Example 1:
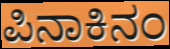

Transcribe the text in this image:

ಪಿನಾಕಿನಂ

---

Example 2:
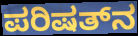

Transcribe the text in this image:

ಪರಿಷತ್‌ನ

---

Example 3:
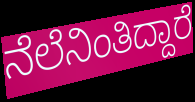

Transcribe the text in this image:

ನೆಲೆನಿಂತಿದ್ದಾರೆ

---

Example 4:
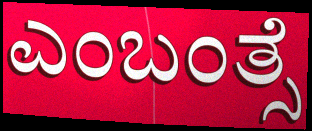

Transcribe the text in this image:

ಎಂಬಂತ್ಸೆ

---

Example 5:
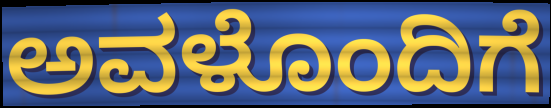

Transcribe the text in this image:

ಅವಳೊಂದಿಗೆ